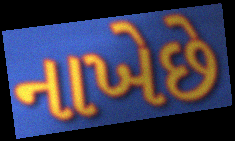
નાખેછે